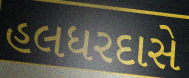
હલધરદાસે